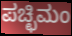
ಪಚ್ಛಿಮಂ